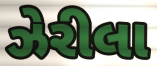
ઝેરીલા